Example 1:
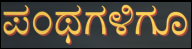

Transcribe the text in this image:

ಪಂಥಗಳಿಗೂ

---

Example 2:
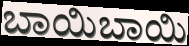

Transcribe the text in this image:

ಬಾಯಿಬಾಯಿ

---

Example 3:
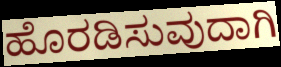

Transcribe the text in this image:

ಹೊರಡಿಸುವುದಾಗಿ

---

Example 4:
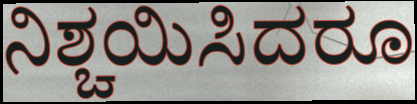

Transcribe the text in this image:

ನಿಶ್ಚಯಿಸಿದರೂ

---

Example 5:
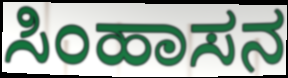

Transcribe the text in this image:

ಸಿಂಹಾಸನ